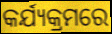
କର୍ଯ୍ୟକ୍ରମରେ